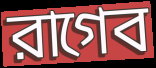
রাগেব